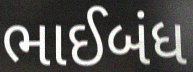
ભાઈબંધ